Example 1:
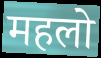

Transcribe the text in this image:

महलो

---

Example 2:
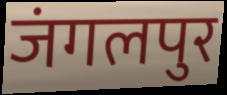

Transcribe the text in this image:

जंगलपुर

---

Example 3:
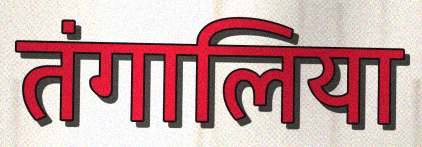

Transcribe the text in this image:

तंगालिया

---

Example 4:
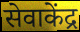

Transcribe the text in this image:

सेवाकेंद्र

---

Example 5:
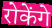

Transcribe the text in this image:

रोकेंगे